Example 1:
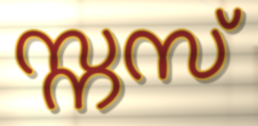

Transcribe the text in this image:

സ്നസ്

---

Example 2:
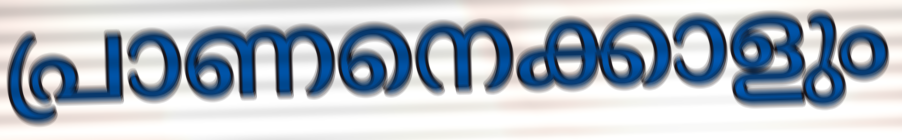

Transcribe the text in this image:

പ്രാണനെക്കാളും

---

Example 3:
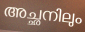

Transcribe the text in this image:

അച്ഛനിലും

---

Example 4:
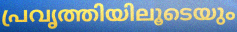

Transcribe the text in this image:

പ്രവൃത്തിയിലൂടെയും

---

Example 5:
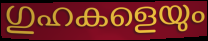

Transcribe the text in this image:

ഗുഹകളെയും